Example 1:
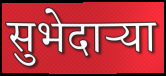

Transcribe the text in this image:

सुभेदाऱ्या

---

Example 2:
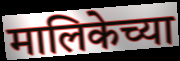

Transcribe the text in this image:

मालिकेच्या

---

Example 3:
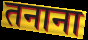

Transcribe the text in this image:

तनाना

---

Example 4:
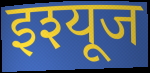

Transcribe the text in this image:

इश्यूज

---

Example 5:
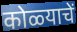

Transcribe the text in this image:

कोळ्याचें